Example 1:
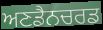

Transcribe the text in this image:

ਅਣਡੈਨਚਰਡ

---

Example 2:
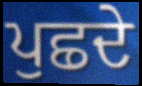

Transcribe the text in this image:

ਪੁਛਦੇ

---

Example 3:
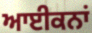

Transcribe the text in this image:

ਆਈਕਨਾਂ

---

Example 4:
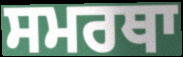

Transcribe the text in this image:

ਸਮਰਥਾ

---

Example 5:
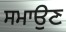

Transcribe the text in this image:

ਸਮਾਉਣ